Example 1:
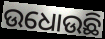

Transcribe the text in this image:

ଉଧୋଉଛି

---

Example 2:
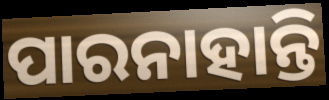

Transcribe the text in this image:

ପାରନାହାନ୍ତି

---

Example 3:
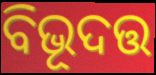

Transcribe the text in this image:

ବିଭୂଦତ୍ତ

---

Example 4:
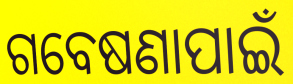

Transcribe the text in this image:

ଗବେଷଣାପାଇଁ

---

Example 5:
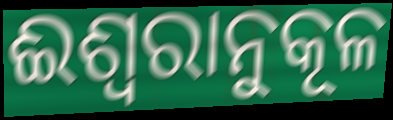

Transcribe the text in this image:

ଈଶ୍ଵରାନୁକୂଳ